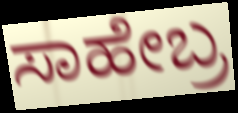
ಸಾಹೇಬ್ರ